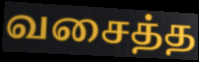
வசைத்த